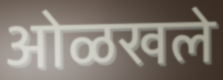
ओळखले